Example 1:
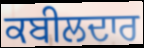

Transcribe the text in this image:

ਕਬੀਲਦਾਰ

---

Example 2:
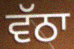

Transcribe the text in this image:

ਵੱਠਾ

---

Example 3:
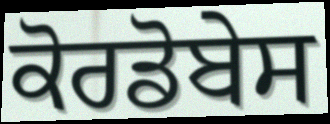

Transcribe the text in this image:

ਕੋਰਡੋਬੇਸ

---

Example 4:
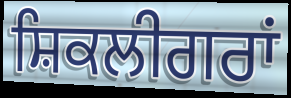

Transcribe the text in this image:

ਸ਼ਿਕਲੀਗਰਾਂ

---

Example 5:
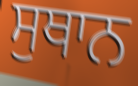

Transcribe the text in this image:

ਸੁਥਾਨ